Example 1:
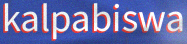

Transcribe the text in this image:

kalpabiswa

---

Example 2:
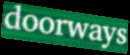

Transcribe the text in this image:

doorways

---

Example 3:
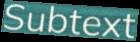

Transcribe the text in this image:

Subtext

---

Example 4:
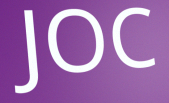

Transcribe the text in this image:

JOC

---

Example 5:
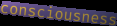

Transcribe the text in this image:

consciousness